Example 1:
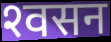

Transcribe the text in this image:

श्वसन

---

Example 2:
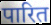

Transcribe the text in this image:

पारित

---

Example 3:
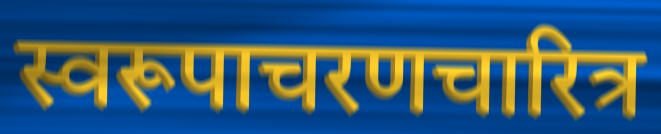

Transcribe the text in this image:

स्वरूपाचरणचारित्र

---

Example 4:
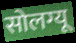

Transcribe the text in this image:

सोलग्यू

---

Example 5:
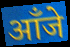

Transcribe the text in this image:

आँजे